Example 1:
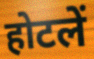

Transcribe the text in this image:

होटलें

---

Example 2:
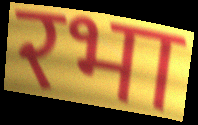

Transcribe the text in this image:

रभा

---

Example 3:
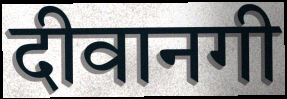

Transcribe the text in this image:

दीवानगी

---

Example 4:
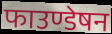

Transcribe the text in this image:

फाउण्डेषन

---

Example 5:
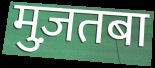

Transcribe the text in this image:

मुज़तबा